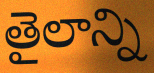
తైలాన్ని